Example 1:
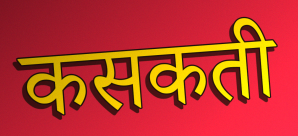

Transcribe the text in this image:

कसकती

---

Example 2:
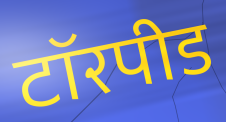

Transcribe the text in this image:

टॉरपीड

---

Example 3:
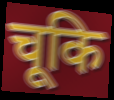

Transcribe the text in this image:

चूकि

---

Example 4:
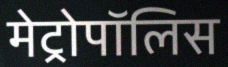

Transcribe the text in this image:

मेट्रोपॉलिस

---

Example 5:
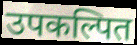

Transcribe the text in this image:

उपकल्पित